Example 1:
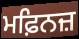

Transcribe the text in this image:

ਮਫ਼ਿਨਜ਼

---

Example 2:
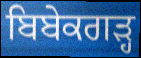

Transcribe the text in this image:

ਬਿਬੇਕਗੜ੍ਹ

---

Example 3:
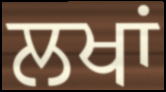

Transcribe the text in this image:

ਲਖਾਂ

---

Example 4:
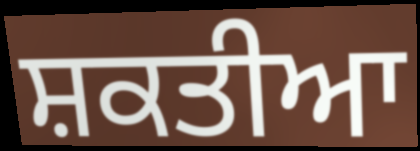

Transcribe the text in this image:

ਸ਼ਕਤੀਆ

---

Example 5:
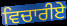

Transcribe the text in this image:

ਵਿਚਾਰੀਏ